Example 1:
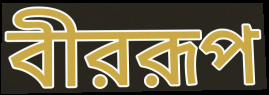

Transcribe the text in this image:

বীররূপ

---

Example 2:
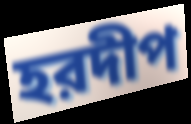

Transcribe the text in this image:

হরদীপ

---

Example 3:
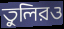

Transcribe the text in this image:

তুলিরও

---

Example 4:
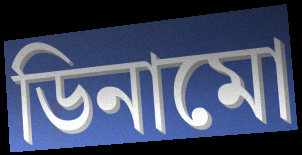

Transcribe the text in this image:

ডিনামো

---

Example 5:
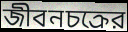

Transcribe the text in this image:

জীবনচক্রের